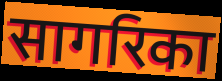
सागरिका